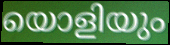
യൊളിയും